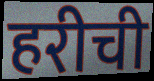
हरीची